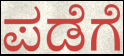
ಪಡೆಗೆ